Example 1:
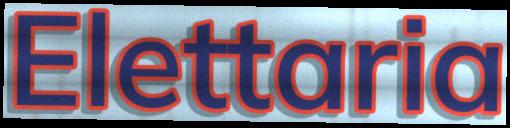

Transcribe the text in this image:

Elettaria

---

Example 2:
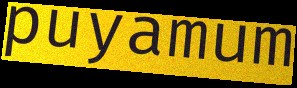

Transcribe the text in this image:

puyamum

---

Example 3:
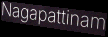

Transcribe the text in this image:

Nagapattinam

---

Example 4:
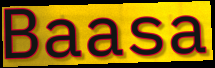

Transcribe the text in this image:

Baasa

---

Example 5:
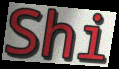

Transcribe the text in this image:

Shi